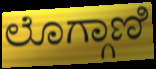
ಲೊಗ್ಗಾಣಿ